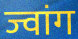
ज्वांग